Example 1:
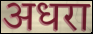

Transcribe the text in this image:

अधरा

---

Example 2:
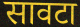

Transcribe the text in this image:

सावटा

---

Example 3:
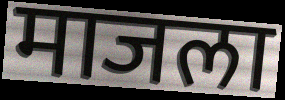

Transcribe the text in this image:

माजला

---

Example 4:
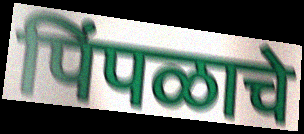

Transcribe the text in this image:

पिंपळाचे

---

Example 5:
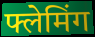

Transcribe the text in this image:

फ्लेमिंग